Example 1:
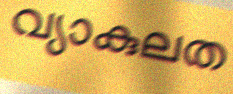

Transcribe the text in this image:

വ്യാകുലത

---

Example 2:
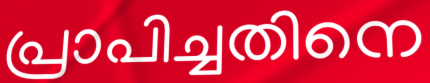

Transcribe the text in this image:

പ്രാപിച്ചതിനെ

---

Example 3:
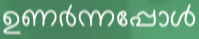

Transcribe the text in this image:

ഉണർന്നപ്പോൾ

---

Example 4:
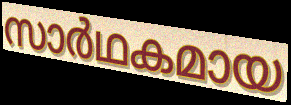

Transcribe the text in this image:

സാർഥകമായ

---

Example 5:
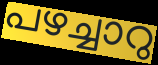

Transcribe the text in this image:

പഴച്ചാറു